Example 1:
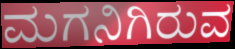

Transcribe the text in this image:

ಮಗನಿಗಿರುವ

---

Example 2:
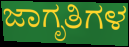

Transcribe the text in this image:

ಜಾಗೃತಿಗಳ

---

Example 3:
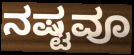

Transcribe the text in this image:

ನಷ್ಟವೂ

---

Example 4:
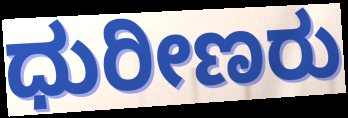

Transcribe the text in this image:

ಧುರೀಣರು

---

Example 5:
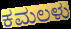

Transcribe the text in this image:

ಕಮಲಳು